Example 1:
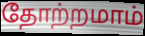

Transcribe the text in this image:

தோற்றமாம்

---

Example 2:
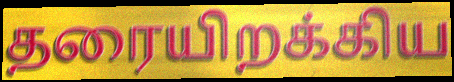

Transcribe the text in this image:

தரையிறக்கிய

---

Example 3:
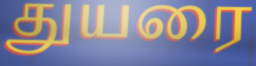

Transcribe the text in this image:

துயரை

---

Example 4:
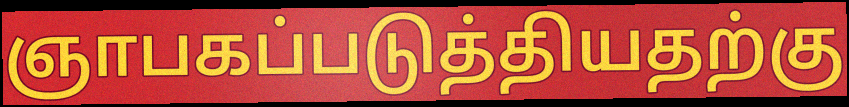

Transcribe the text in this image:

ஞாபகப்படுத்தியதற்கு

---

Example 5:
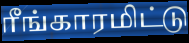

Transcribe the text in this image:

ரீங்காரமிட்டு